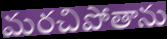
మరచిపోతాను